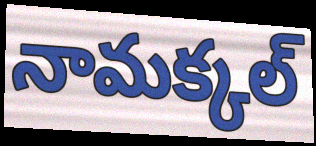
నామక్కల్